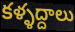
కళ్ళద్దాలు